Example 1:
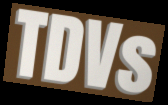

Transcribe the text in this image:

TDVs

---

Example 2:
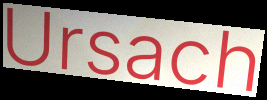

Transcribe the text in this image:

Ursach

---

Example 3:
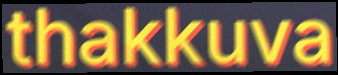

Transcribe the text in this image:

thakkuva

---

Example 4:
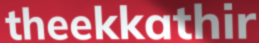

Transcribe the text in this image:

theekkathir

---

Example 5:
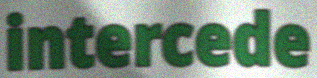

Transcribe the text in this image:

intercede